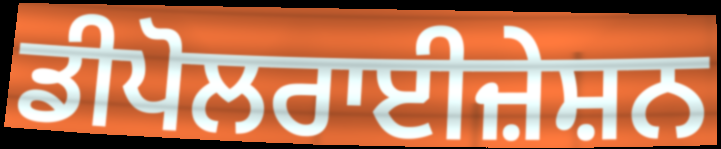
ਡੀਪੋਲਰਾਈਜ਼ੇਸ਼ਨ